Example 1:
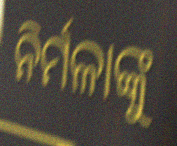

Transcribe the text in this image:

ନିର୍ମଳାଙ୍କୁ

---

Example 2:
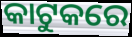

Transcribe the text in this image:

କାଟୁକରେ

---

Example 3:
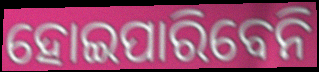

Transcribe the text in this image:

ହୋଇପାରିବେନି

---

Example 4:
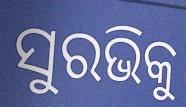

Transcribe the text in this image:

ସୁରଭିକୁ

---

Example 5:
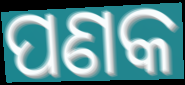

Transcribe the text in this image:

ପଣକ